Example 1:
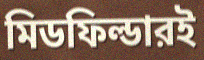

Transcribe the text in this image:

মিডফিল্ডারই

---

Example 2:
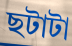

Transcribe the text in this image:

ছটাটা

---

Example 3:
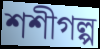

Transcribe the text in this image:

শশীগল্প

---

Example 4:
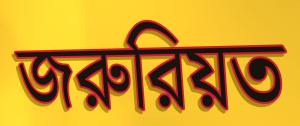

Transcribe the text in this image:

জরুরিয়ত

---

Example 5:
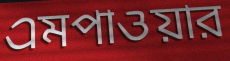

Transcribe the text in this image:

এমপাওয়ার